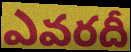
ఎవరదీ